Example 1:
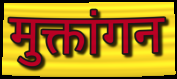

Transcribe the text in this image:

मुक्तांगन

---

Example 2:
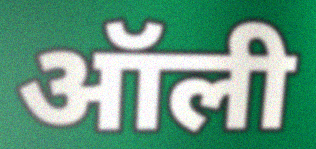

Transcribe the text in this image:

ऑली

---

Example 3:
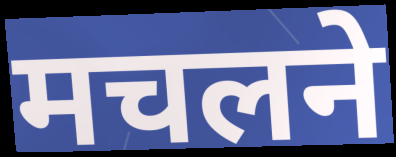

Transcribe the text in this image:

मचलने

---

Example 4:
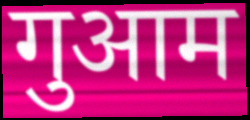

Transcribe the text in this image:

गुआम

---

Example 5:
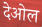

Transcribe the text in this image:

देओल